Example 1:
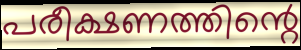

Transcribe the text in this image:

പരീക്ഷണത്തിന്റെ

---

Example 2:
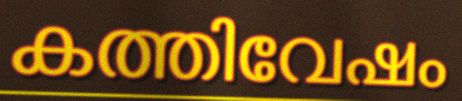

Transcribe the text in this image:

കത്തിവേഷം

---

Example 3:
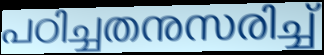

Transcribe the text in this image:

പഠിച്ചതനുസരിച്ച്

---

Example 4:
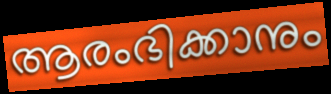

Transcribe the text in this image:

ആരംഭിക്കാനും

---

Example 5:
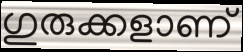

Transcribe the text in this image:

ഗുരുക്കളാണ്